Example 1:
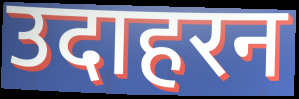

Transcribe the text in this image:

उदाहरन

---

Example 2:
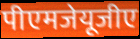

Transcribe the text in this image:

पीएमजेयूजीए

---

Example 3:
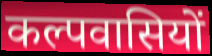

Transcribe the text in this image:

कल्पवासियों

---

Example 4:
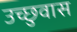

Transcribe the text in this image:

उच्छुवास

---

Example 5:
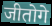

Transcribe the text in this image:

जीतोगे